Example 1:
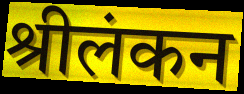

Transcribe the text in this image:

श्रीलंकन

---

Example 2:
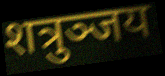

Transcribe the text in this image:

शत्रुञ्जय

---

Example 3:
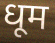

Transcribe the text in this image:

धूम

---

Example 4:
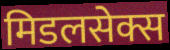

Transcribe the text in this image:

मिडलसेक्स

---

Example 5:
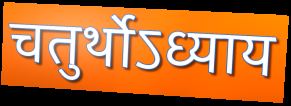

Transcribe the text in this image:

चतुर्थोऽध्याय